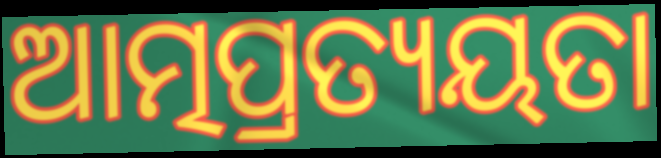
ଆତ୍ମପ୍ରତ୍ୟୟତା